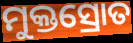
ମୁକ୍ତସ୍ରୋତ